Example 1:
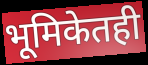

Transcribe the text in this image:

भूमिकेतही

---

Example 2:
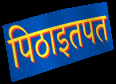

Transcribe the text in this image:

पिठाइतपत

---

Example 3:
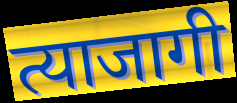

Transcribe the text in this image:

त्याजागी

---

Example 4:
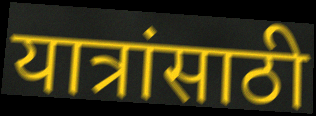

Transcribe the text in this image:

यात्रांसाठी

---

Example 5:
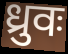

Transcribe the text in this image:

ध्रुवः